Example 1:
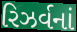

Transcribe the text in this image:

રિઝર્વનાં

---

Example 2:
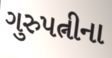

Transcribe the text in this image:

ગુરુપત્નીના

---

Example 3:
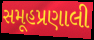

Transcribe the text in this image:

સમૂહપ્રણાલી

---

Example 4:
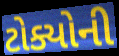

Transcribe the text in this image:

ટોક્યોની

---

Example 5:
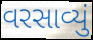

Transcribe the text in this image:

વરસાવ્યું